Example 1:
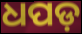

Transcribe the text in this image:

ଧପଡ଼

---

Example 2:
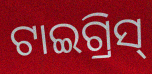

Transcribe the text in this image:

ଟାଇଗ୍ରିସ୍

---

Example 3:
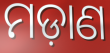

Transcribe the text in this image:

ମଡ଼ାଣ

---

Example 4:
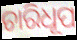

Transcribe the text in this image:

ଚାରିଧୂପ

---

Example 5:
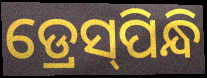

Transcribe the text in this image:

ଡ୍ରେସ୍‌ପିନ୍ଧି